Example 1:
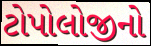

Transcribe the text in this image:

ટોપોલોજીનો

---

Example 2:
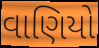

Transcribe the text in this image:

વાણિયો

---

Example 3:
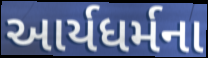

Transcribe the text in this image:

આર્યધર્મના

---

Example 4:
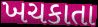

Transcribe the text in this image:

ખચકાતા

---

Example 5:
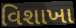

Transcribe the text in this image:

વિશાખા